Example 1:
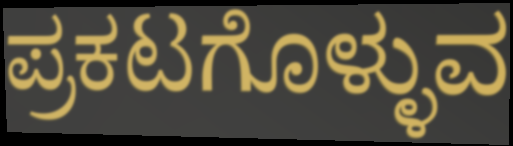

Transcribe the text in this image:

ಪ್ರಕಟಗೊಳ್ಳುವ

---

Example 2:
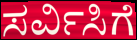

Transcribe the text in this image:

ಸರ್ವಿಸಿಗೆ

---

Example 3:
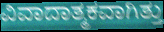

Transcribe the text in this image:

ವಿವಾದಾತ್ಮಕವಾಗಿತ್ತು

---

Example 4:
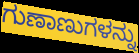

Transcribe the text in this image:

ಗುಣಾಣುಗಳನ್ನು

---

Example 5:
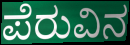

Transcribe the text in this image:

ಪೆರುವಿನ